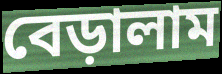
বেড়ালাম